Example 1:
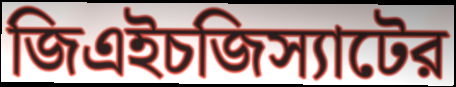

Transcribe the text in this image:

জিএইচজিস্যাটের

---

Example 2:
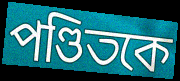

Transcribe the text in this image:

পণ্ডিতকে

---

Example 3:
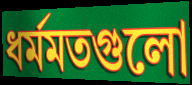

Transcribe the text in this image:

ধর্মমতগুলো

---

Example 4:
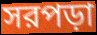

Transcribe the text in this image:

সরপড়া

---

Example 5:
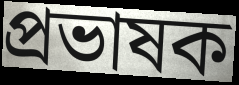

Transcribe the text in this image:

প্রভাষক